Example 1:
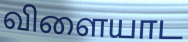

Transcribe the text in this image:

விளையாட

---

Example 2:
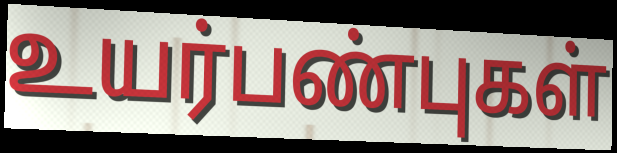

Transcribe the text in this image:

உயர்பண்புகள்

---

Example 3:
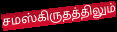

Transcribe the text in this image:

சமஸ்கிருதத்திலும்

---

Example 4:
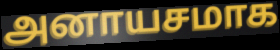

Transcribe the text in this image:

அனாயசமாக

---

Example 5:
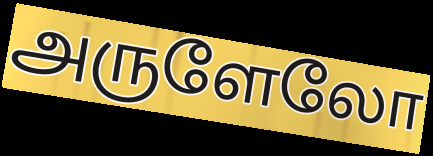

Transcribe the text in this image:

அருளேலோ